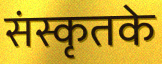
संस्कृतके